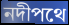
নদীপথে